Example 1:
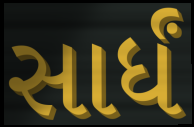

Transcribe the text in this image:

સાર્ધં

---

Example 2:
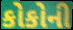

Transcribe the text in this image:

કોકોની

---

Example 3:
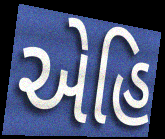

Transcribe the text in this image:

એહિ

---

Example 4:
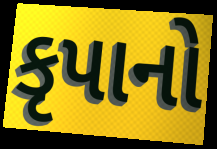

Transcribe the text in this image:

કૃપાનો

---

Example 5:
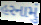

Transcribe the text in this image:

હરનામું